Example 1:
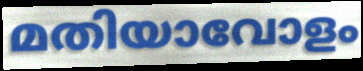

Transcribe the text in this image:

മതിയാവോളം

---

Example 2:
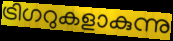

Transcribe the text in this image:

ട്രിഗറുകളാകുന്നു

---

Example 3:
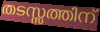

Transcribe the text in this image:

തടസ്സത്തിന്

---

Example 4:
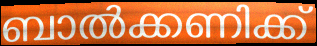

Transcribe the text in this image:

ബാൽക്കണിക്ക്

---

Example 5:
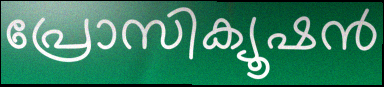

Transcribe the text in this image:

പ്രോസിക്യൂഷൻ